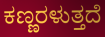
ಕಣ್ಣರಳುತ್ತದೆ